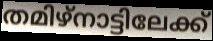
തമിഴ്നാട്ടിലേക്ക്